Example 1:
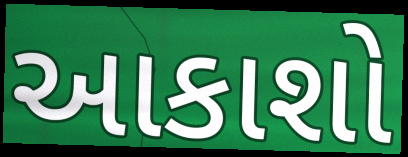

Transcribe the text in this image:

આકાશો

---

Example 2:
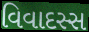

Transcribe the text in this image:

વિવાદસ્સ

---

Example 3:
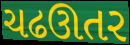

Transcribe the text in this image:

ચઢઊતર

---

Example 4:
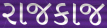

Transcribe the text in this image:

રાજકાજ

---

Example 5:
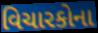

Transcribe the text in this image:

વિચારકોના